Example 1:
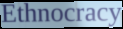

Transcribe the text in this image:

Ethnocracy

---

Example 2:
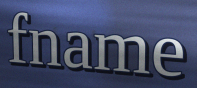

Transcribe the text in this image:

fname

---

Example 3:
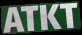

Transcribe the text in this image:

ATKT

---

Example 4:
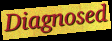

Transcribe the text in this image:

Diagnosed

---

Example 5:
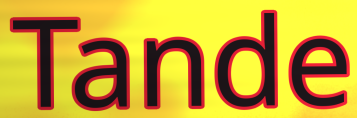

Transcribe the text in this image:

Tande